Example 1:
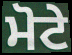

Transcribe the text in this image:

ਮੋਟੇ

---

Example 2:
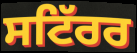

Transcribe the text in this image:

ਸਟਿੱਰਰ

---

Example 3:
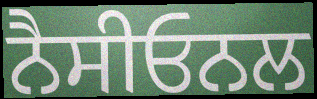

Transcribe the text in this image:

ਨੈਸੀਓਨਲ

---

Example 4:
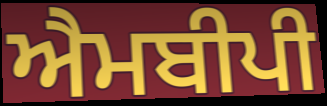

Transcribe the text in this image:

ਐਮਬੀਪੀ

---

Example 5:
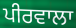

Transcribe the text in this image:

ਪੀਰਵਾਲਾ